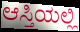
ಆಸ್ತಿಯಲ್ಲಿ